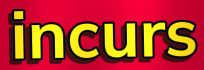
incurs